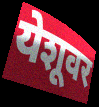
येशूवर